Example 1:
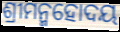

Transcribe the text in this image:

ଶ୍ରୀମନ୍ମହୋଦୟ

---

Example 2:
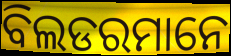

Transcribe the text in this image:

ବିଲଡରମାନେ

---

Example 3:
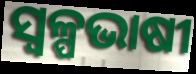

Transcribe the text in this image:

ସ୍ୱଳ୍ପଭାଷୀ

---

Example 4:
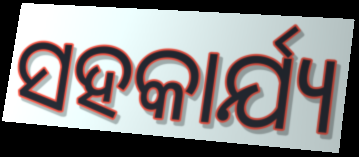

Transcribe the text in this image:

ସହକାର୍ଯ୍ୟ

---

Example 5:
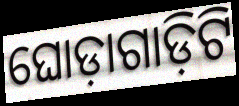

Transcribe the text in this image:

ଘୋଡ଼ାଗାଡ଼ିଟି